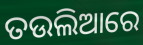
ତଉଲିଆରେ